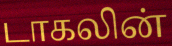
டாகலின்